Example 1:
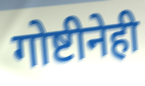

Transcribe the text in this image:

गोष्टीनेही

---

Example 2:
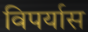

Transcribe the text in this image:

विपर्यास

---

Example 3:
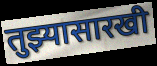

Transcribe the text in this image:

तुझ्यासारखी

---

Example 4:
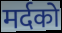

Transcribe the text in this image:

मर्दको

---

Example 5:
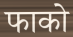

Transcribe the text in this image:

फाको